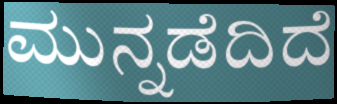
ಮುನ್ನಡೆದಿದೆ